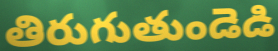
తిరుగుతుండెడి